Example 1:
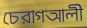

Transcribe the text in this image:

চেরাগআলী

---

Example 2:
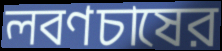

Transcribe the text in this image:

লবণচাষের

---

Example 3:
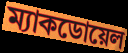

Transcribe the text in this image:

ম্যাকডোয়েল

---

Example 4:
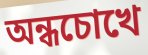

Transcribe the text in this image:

অন্ধচোখে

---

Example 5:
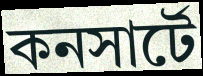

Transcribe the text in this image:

কনসার্টে